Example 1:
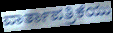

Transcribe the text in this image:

ವಾರ್ತಾಪತ್ರಿಕೆಯು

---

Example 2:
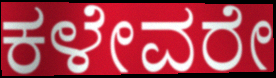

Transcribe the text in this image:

ಕಳೇವರೇ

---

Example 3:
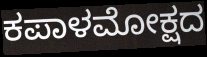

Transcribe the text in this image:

ಕಪಾಳಮೋಕ್ಷದ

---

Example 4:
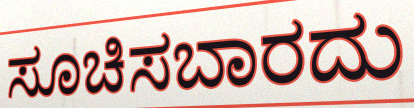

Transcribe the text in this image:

ಸೂಚಿಸಬಾರದು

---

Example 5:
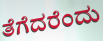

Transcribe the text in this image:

ತೆಗೆದರೆಂದು